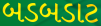
બડબડાટ